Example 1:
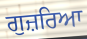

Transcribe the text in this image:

ਗੁਜ਼ਰਿਆ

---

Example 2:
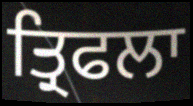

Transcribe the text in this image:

ਤ੍ਰਿਫਲਾ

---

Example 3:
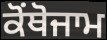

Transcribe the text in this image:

ਕੋਂਥੋਜਾਮ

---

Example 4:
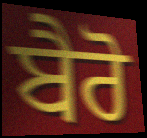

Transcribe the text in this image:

ਬੈਰੋ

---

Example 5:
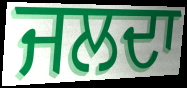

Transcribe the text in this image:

ਜਲਦਾ